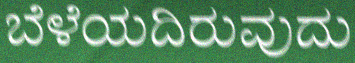
ಬೆಳೆಯದಿರುವುದು